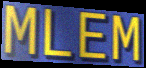
MLEM